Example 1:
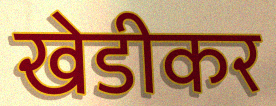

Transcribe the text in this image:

खेडीकर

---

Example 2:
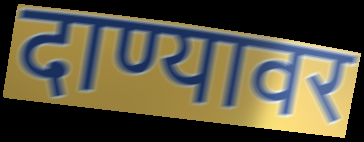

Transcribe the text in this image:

दाण्यावर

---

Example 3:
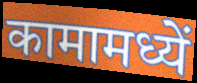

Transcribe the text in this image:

कामामध्यें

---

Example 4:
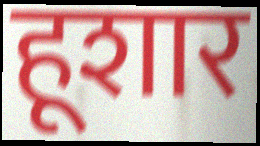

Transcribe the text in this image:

हूशार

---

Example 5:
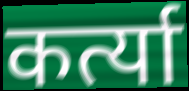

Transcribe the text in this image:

कर्त्या